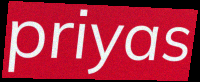
priyas